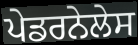
ਪੇਡਰਨੇਲੇਸ